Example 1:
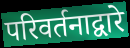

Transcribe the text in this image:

परिवर्तनाद्वारे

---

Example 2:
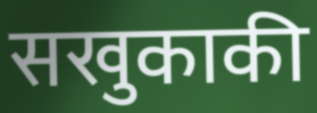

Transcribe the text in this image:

सखुकाकी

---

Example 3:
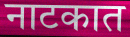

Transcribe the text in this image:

नाटकात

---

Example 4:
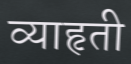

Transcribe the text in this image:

व्याहृती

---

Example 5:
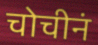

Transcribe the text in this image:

चोचीनं